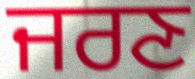
ਜਰਣ